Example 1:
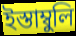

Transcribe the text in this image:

ইস্তাম্বুলি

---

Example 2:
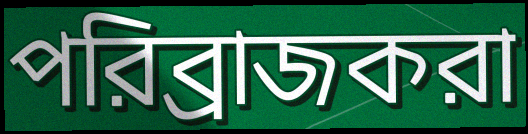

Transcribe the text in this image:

পরিব্রাজকরা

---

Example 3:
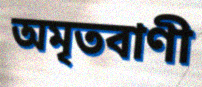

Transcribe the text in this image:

অমৃতবাণী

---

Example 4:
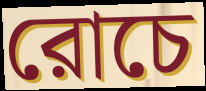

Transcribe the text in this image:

রোচে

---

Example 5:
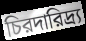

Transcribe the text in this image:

চিরদারিদ্র্য